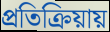
প্রতিক্রিয়ায়